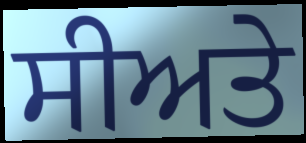
ਸੀਅਤੇ